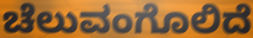
ಚೆಲುವಂಗೊಲಿದೆ